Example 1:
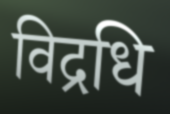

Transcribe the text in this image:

विद्रधि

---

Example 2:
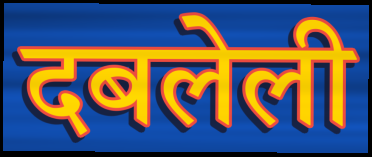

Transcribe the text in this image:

दबलेली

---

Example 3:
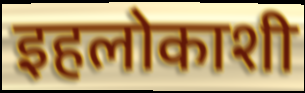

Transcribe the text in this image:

इहलोकाशी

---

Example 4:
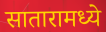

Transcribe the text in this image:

सातारामध्ये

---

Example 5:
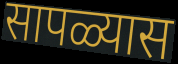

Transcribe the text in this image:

सापळ्यास